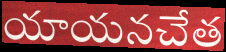
యాయనచేత